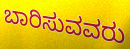
ಬಾರಿಸುವವರು